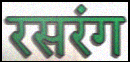
रसरंग